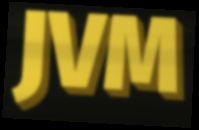
JVM